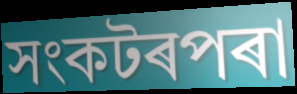
সংকটৰপৰা